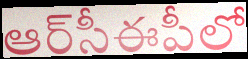
ఆర్‌సీఈపీలో